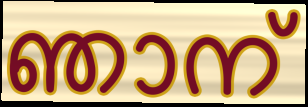
ഞാന്